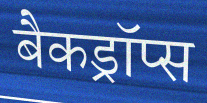
बैकड्रॉप्स